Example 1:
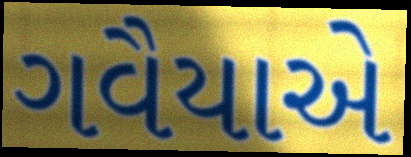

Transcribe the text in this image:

ગવૈયાએ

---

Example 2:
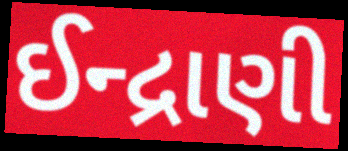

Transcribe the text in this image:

ઈન્દ્રાણી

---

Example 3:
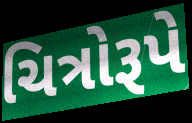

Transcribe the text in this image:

ચિત્રોરૂપે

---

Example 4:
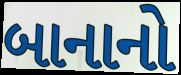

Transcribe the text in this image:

બાનાનો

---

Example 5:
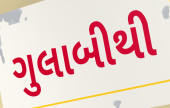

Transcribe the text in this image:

ગુલાબીથી